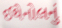
ઈથેનોલનું